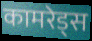
कामरेड्स